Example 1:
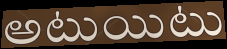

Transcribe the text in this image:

అటుయిటు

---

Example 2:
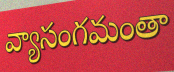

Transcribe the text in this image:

వ్యాసంగమంతా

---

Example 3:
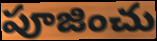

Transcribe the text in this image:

పూజించు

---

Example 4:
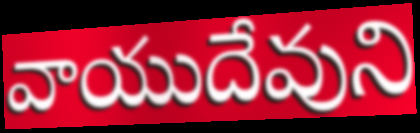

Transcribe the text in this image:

వాయుదేవుని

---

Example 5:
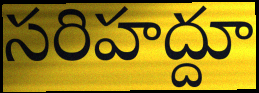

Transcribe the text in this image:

సరిహద్దూ